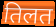
तिलत